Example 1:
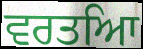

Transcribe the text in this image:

ਵਰਤਆਿ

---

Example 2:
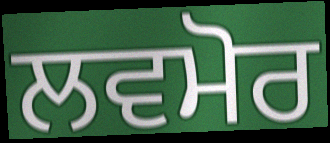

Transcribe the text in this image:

ਲਵਮੋਰ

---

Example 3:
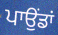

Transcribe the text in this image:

ਪਾਉਂਡਾਂ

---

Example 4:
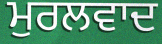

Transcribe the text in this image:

ਮੁਰਲਵਾਦ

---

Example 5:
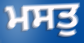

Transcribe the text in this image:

ਮਸਤੁ